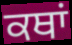
ਕਥਾਂ